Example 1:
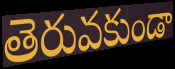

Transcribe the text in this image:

తెరువకుండా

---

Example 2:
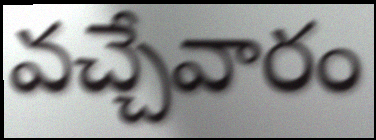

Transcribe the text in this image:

వచ్చేవారం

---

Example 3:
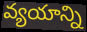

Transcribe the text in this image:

వ్యయాన్ని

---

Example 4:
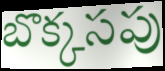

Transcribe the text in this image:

బొక్కసపు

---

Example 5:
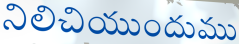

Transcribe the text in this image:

నిలిచియుందుము